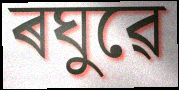
ৰঘুৱে